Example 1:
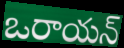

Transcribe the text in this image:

ఒరాయన్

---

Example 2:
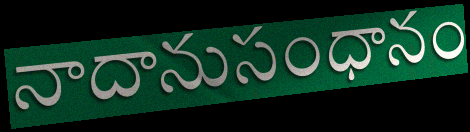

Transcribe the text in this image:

నాదానుసంధానం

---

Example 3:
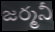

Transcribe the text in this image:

జర్మనీ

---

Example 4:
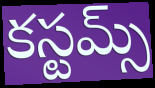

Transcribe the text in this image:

కస్టమ్స్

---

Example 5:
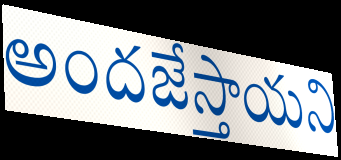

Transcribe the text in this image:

అందజేస్తాయని